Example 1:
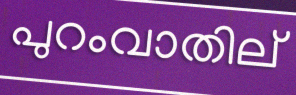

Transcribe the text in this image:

പുറംവാതില്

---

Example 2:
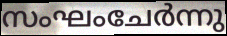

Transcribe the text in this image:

സംഘംചേർന്നു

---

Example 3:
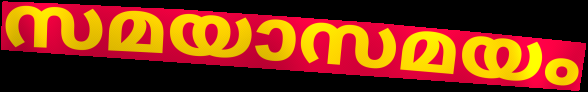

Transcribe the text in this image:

സമയാസമയം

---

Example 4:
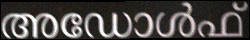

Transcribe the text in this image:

അഡോൾഫ്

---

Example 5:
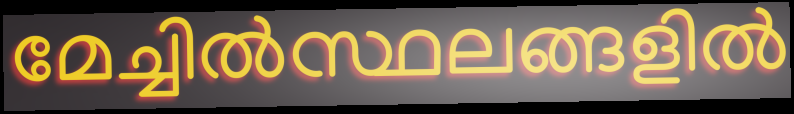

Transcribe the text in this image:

മേച്ചിൽസ്ഥലങ്ങളിൽ